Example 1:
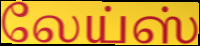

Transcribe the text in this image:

லேய்ஸ்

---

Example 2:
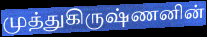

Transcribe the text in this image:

முத்துகிருஷ்ணனின்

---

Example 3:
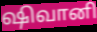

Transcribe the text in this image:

ஷிவானி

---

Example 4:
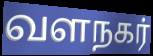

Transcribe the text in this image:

வளநகர்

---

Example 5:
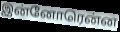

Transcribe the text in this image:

இன்னோரென்ன